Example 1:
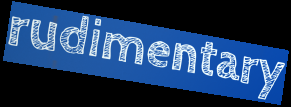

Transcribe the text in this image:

rudimentary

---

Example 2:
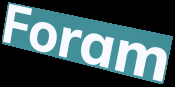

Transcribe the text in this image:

Foram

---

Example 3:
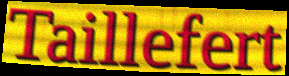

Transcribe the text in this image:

Taillefert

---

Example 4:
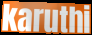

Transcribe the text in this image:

karuthi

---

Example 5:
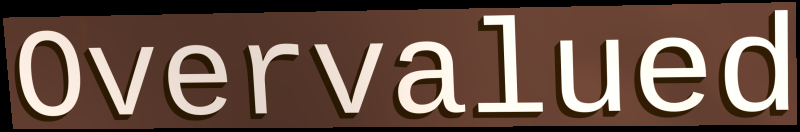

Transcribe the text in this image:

Overvalued